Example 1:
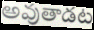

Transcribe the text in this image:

అవుతాడట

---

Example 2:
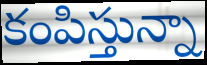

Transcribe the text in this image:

కంపిస్తున్నా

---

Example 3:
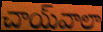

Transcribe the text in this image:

చాయ్‌వాలా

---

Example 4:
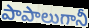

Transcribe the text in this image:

పాపాలుగానీ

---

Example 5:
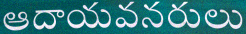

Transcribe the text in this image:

ఆదాయవనరులు